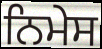
ਨਿਮੇਸ